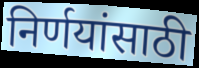
निर्णयांसाठी